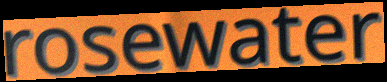
rosewater